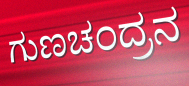
ಗುಣಚಂದ್ರನ